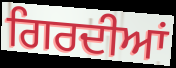
ਗਿਰਦੀਆਂ